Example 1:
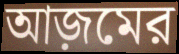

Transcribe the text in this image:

আজ়মের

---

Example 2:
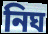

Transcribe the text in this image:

নিঘ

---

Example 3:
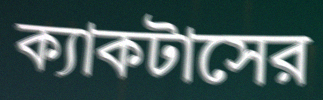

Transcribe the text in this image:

ক্যাকটাসের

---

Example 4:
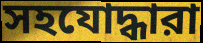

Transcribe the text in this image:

সহযোদ্ধারা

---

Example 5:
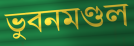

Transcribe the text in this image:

ভুবনমণ্ডল